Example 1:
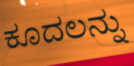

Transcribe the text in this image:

ಕೂದಲನ್ನು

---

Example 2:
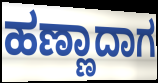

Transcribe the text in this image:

ಹಣ್ಣಾದಾಗ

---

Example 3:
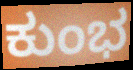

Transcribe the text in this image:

ಕುಂಭ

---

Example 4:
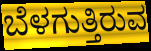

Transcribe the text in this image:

ಬೆಳಗುತ್ತಿರುವ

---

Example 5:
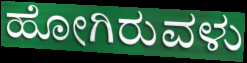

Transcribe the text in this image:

ಹೋಗಿರುವಳು